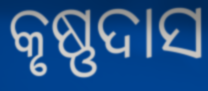
କୃଷ୍ଣଦାସ